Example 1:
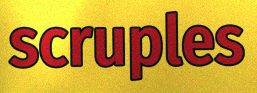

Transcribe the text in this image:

scruples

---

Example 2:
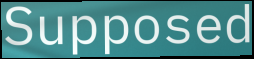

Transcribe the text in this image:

Supposed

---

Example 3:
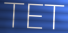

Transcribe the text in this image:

TET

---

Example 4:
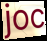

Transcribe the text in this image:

joc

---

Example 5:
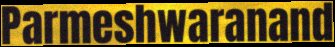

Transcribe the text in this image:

Parmeshwaranand